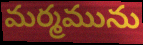
మర్మమును